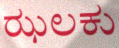
ಝಲಕು